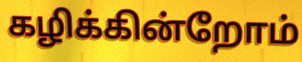
கழிக்கின்றோம்